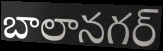
బాలానగర్